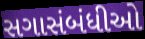
સગાસંબંધીઓ